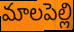
మాలపెల్లి